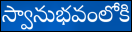
స్వానుభవంలోకి